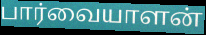
பார்வையாளன்